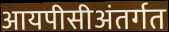
आयपीसीअंतर्गत